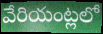
వేరియంట్లలో